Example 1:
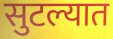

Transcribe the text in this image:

सुटल्यात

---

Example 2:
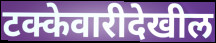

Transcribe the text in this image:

टक्केवारीदेखील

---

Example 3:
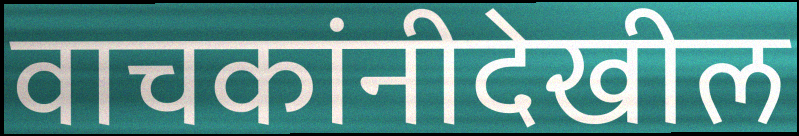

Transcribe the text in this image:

वाचकांनीदेखील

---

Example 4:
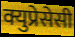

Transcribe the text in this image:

क्युप्रेसेसी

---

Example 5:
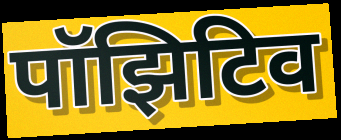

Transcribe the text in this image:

पॉझिटिव